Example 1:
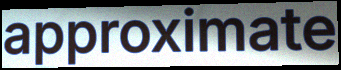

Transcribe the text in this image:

approximate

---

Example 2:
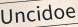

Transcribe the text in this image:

Uncidoe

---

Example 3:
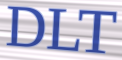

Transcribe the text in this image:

DLT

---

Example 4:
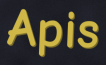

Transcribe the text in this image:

Apis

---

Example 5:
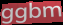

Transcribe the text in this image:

ggbm